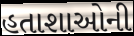
હતાશાઓની